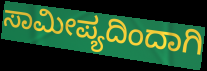
ಸಾಮೀಪ್ಯದಿಂದಾಗಿ